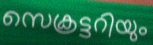
സെക്രട്ടറിയും